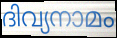
ദിവ്യനാമം